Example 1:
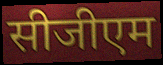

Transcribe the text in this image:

सीजीएम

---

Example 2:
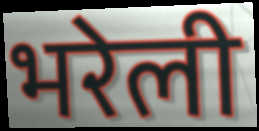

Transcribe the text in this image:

भरेली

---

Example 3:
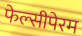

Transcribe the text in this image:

फेल्सीपेरम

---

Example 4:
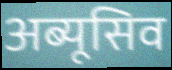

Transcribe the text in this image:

अब्यूसिव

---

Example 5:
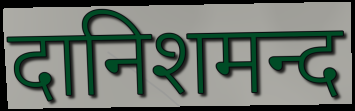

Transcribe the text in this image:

दानिशमन्द